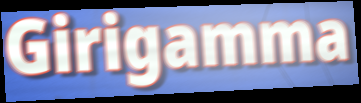
Girigamma